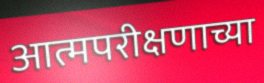
आत्मपरीक्षणाच्या